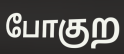
போகுற